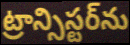
ట్రాన్సిస్టర్‌ను